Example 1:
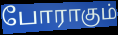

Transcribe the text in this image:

போராகும்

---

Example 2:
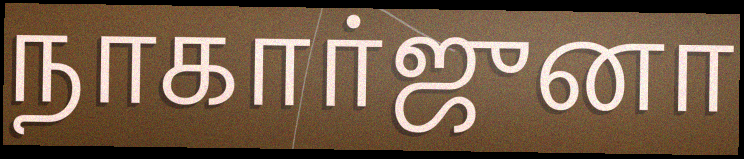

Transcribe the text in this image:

நாகார்ஜுனா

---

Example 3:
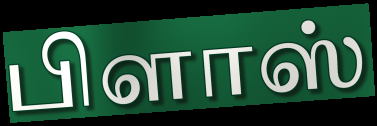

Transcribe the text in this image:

பிளாஸ்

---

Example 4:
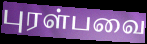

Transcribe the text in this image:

புரள்பவை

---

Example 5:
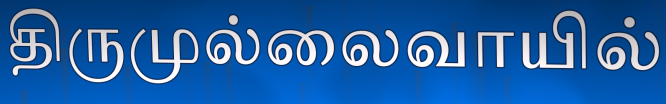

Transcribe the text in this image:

திருமுல்லைவாயில்